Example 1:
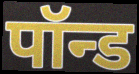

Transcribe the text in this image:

पॉन्ड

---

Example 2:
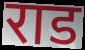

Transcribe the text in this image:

राड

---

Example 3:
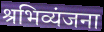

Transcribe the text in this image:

श्रभिव्यंजना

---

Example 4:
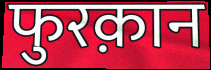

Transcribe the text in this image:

फुरक़ान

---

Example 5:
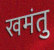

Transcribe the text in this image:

खमंतु